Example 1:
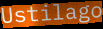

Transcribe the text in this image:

Ustilago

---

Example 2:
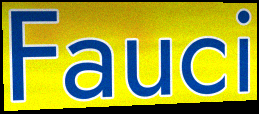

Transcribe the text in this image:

Fauci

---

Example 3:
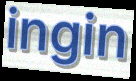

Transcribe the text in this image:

ingin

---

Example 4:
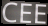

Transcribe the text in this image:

CEE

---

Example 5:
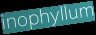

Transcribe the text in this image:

inophyllum